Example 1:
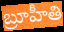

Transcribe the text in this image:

బ్రూహీతి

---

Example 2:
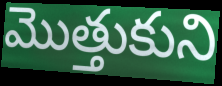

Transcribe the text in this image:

మొత్తుకుని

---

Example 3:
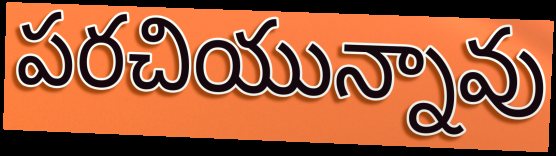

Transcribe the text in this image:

పరచియున్నావు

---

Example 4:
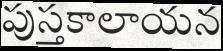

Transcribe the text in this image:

పుస్తకాలాయన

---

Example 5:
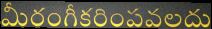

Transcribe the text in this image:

మీరంగీకరింపవలదు